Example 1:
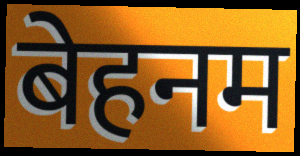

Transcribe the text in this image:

बेहनम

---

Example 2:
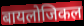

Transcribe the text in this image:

बायलोजिकल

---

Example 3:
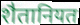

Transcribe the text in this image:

शैतानियत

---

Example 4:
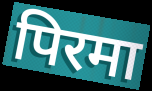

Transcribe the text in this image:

पिरमा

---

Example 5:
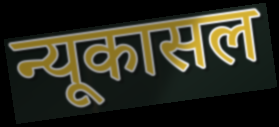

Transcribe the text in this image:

न्यूकासल